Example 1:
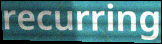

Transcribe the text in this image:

recurring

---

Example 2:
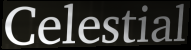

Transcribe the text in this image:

Celestial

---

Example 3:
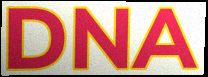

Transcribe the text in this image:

DNA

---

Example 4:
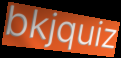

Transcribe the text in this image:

bkjquiz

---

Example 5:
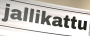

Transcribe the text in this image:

jallikattu